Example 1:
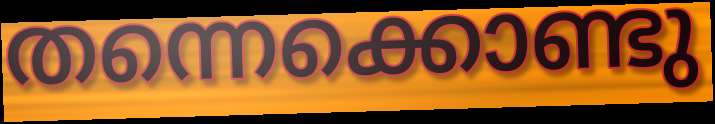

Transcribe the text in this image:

തന്നെക്കൊണ്ടു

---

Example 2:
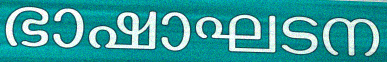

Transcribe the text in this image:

ഭാഷാഘടന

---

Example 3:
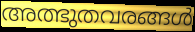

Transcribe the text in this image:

അത്ഭുതവരങ്ങൾ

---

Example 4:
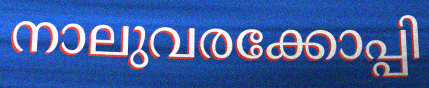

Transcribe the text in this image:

നാലുവരക്കോപ്പി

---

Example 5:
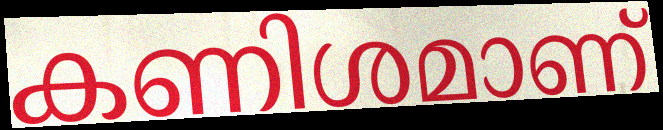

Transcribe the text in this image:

കണിശമാണ്